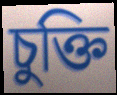
চুক্তি